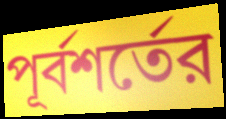
পূর্বশর্তের